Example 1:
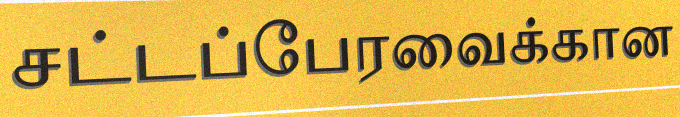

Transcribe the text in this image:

சட்டப்பேரவைக்கான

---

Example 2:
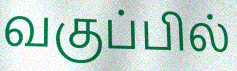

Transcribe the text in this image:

வகுப்பில்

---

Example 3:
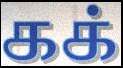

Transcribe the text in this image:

கக்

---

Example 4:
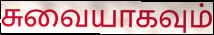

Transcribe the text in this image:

சுவையாகவும்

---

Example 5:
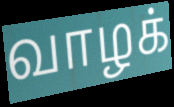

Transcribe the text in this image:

வாழக்